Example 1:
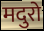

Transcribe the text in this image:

मदुरो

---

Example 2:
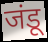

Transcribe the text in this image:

जंडू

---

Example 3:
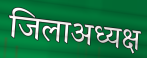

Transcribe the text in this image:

जिलाअध्यक्ष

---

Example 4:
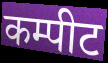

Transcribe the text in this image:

कम्पीट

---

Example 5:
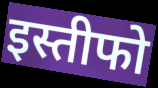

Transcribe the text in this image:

इस्तीफो